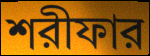
শরীফার